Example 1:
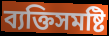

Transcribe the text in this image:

ব্যক্তিসমষ্টি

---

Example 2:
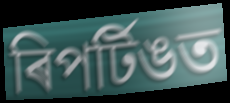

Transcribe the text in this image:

ৰিপৰ্টিঙত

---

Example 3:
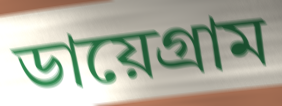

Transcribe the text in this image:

ডায়েগ্ৰাম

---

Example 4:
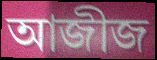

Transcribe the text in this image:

আজীজ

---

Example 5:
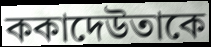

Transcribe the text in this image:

ককাদেউতাকে